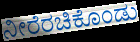
ನೀರೆರಚಿಕೊಂಡು